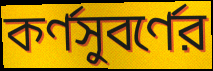
কর্ণসুবর্ণের